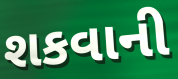
શકવાની